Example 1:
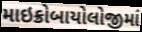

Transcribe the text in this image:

માઇક્રોબાયોલોજીમાં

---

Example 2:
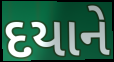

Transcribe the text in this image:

દયાને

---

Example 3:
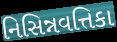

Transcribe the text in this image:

નિસિન્નવત્તિકા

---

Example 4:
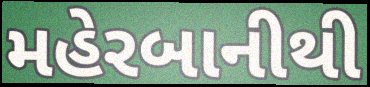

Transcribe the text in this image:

મહેરબાનીથી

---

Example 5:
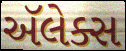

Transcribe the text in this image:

ઍલેક્સ